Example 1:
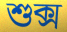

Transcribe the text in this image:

শুক্স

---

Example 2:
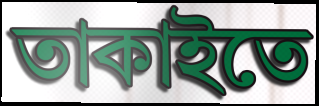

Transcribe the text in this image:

তাকাইতে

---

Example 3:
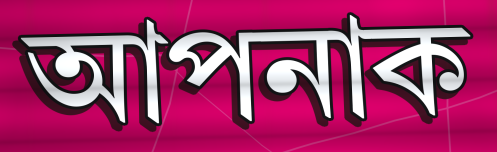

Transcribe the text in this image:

আপনাক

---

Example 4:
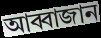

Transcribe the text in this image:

আব্বাজান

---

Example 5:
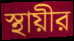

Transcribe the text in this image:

স্থায়ীর